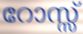
റോസ്സ്